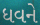
ધવને